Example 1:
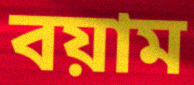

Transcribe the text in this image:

বয়াম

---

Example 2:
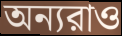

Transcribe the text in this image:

অন্যরাও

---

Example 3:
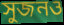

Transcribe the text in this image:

সুজনও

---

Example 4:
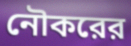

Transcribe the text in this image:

নৌকরের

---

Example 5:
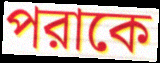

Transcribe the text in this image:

পরাকে